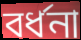
বর্ধনা